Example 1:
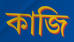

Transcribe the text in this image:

কাজি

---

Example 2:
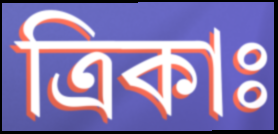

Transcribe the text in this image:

ত্রিকাঃ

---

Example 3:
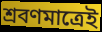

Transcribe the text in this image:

শ্রবণমাত্রেই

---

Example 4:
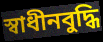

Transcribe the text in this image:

স্বাধীনবুদ্ধি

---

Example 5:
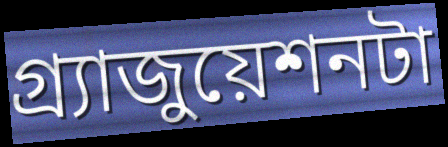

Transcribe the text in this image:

গ্র্যাজুয়েশনটা